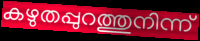
കഴുതപ്പുറത്തുനിന്ന്